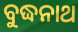
ବୁଦ୍ଧନାଥ